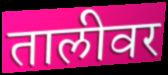
तालीवर